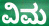
ವಿಮ